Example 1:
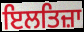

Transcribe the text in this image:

ਇਲਤਿਜ਼ਾ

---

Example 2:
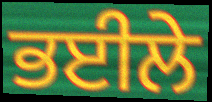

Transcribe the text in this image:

ਭਈਲੇ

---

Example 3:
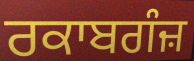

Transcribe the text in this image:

ਰਕਾਬਗੰਜ਼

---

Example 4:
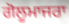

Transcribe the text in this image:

ਗੋਲੂਮਾਜਰਾ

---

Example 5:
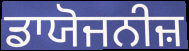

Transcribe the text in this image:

ਡਾਯੋਜਨੀਜ਼